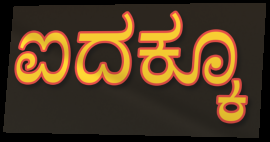
ಐದಕ್ಕೂ